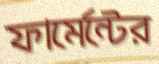
ফার্মেন্টের